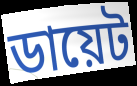
ডায়েট